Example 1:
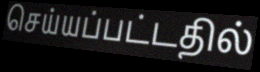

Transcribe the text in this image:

செய்யப்பட்டதில்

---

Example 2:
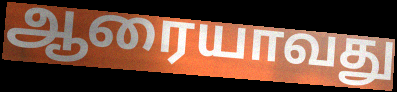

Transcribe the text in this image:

ஆரையாவது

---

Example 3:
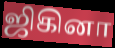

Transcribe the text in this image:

ஜிகினா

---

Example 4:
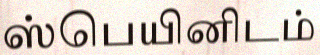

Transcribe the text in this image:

ஸ்பெயினிடம்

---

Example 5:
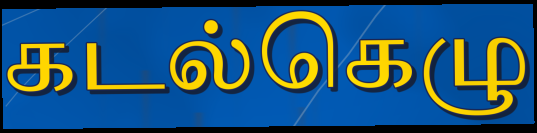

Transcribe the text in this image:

கடல்கெழு